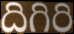
దిగిరి